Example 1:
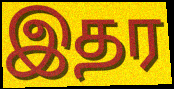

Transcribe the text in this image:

இதர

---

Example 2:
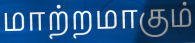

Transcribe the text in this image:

மாற்றமாகும்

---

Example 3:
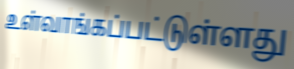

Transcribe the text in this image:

உள்வாங்கப்பட்டுள்ளது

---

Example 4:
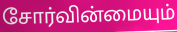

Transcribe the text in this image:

சோர்வின்மையும்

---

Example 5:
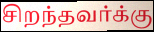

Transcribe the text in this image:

சிறந்தவர்க்கு